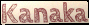
Kanaka